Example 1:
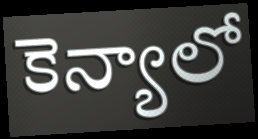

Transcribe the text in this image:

కెన్యాలో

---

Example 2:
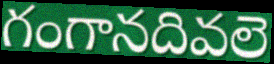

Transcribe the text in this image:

గంగానదివలె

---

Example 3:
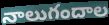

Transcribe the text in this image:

నాలుగందాల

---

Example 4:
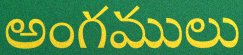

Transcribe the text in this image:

అంగములు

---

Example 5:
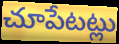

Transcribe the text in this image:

చూపేటట్లు